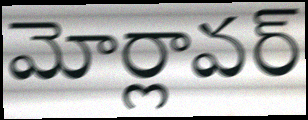
మోర్లావర్